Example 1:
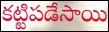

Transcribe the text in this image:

కట్టిపడేసాయి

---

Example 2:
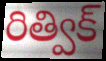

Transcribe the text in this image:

రిత్విక్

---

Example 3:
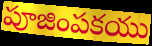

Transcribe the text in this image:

పూజింపకయు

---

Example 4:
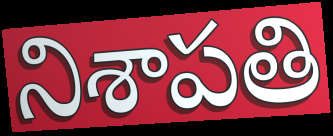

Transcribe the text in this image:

నిశాపతి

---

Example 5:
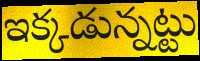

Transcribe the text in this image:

ఇక్కడున్నట్టు